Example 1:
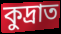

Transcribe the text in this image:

কুদ্রাত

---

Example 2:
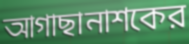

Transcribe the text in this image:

আগাছানাশকের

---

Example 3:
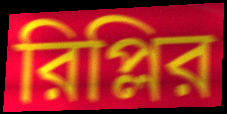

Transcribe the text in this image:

রিপ্লির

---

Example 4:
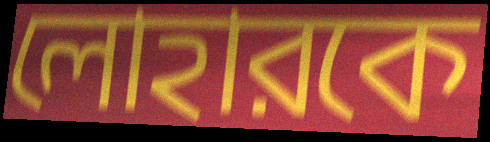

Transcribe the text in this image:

লোহারকে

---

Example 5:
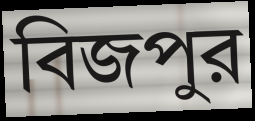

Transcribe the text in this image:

বিজপুর